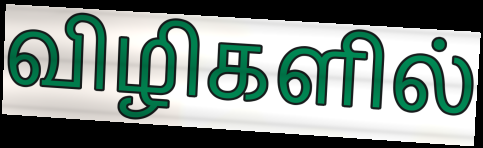
விழிகளில்